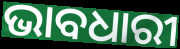
ଭାବଧାରୀ